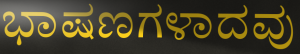
ಭಾಷಣಗಳಾದವು